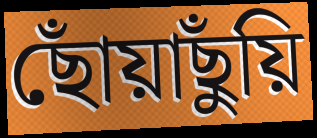
ছোঁয়াছুঁয়ি